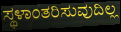
ಸ್ಥಳಾಂತರಿಸುವುದಿಲ್ಲ